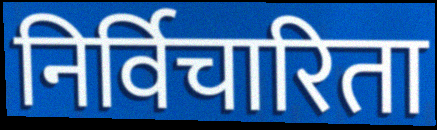
निर्विचारिता